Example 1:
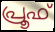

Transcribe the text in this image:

പ്രൂഫ്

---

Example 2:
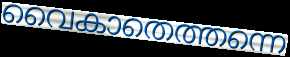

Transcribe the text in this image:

വൈകാതെത്തന്നെ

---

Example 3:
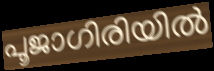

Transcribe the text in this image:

പൂജാഗിരിയിൽ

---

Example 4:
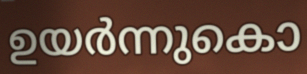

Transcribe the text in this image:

ഉയർന്നുകൊ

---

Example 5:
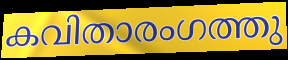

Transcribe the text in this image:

കവിതാരംഗത്തു